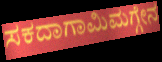
ಸಕದಾಗಾಮಿಮಗ್ಗೇನ